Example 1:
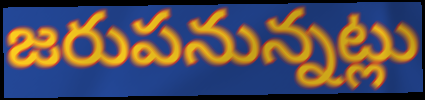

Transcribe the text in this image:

జరుపనున్నట్లు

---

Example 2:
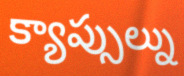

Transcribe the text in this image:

క్యాప్సుల్ను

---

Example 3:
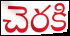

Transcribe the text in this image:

చెరకి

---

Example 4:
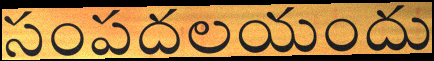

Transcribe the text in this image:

సంపదలయందు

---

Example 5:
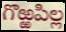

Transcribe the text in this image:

గొఱ్ఱపిల్ల